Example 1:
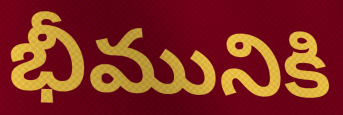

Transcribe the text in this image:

భీమునికి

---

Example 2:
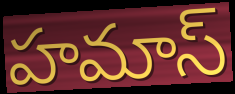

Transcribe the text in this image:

హమాస్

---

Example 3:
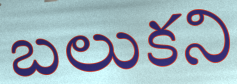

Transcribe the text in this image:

బలుకని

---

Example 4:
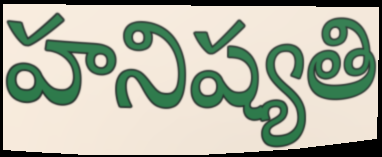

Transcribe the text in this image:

హనిష్యతి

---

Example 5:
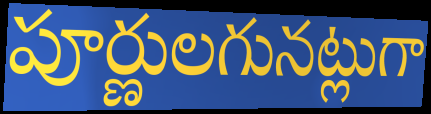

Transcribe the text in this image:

పూర్ణులగునట్లుగా